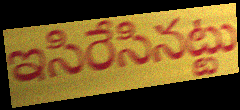
ఇసిరేసినట్టు